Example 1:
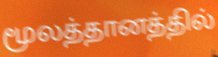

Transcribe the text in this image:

மூலத்தானத்தில்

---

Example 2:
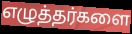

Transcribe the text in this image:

எழுத்தர்களை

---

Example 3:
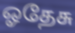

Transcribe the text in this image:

ஓதேசு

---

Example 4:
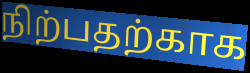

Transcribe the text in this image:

நிற்பதற்காக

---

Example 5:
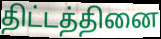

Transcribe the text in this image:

திட்டத்தினை